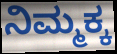
ನಿಮ್ಮಕ್ಕ